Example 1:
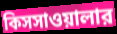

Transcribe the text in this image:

কিসসাওয়ালার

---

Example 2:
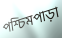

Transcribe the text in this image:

পশ্চিমপাড়া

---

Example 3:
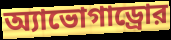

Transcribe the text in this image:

অ্যাভোগাড্রোর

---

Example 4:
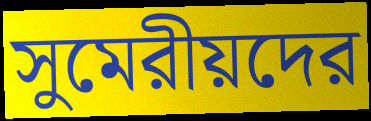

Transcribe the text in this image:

সুমেরীয়দের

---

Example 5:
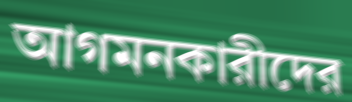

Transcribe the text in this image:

আগমনকারীদের